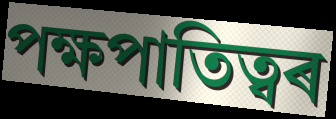
পক্ষপাতিত্বৰ